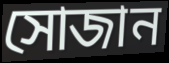
সোজান